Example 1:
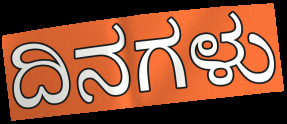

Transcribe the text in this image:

ದಿನಗಳು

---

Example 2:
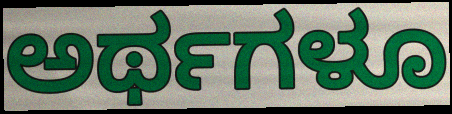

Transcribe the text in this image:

ಅರ್ಥಗಳೂ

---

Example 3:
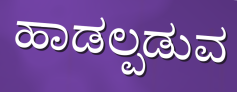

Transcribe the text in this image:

ಹಾಡಲ್ಪಡುವ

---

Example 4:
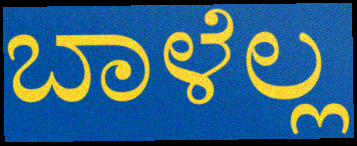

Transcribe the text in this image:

ಬಾಳೆಲ್ಲ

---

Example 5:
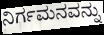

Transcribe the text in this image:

ನಿರ್ಗಮನವನ್ನು